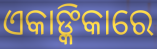
ଏକାଙ୍କିକାରେ